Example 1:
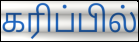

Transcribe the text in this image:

கரிப்பில்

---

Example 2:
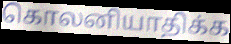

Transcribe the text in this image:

கொலனியாதிக்க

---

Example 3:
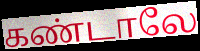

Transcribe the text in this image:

கண்டாலே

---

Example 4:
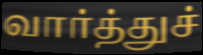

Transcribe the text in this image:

வார்த்துச்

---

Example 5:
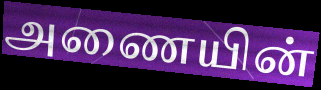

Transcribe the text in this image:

அணையின்